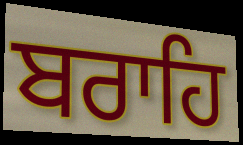
ਬਰਾਹਿ